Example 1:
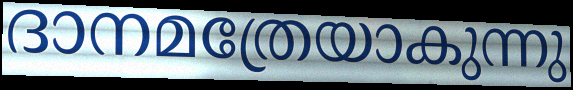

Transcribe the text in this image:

ദാനമത്രേയാകുന്നു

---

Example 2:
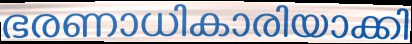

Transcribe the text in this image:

ഭരണാധികാരിയാക്കി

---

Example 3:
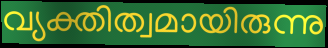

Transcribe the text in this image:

വ്യക്തിത്വമായിരുന്നു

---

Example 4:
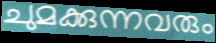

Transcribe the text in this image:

ചുമക്കുന്നവരും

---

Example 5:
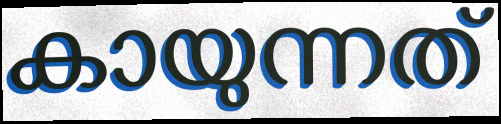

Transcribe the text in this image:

കായുന്നത്